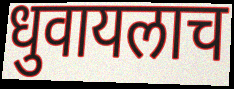
धुवायलाच